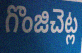
గొంజిచెట్ల